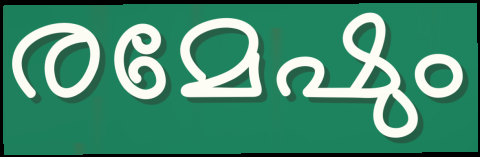
രമേഷും